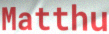
Matthu